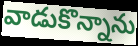
వాడుకొన్నాను